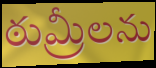
ఠుమ్రీలను